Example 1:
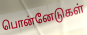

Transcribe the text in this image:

பொன்னேடுகள்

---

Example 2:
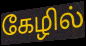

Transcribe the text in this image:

கேழில்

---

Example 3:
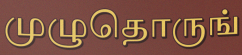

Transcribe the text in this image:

முழுதொருங்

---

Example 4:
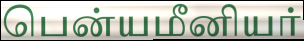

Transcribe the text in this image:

பென்யமீனியர்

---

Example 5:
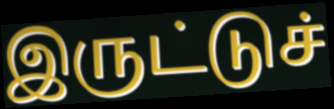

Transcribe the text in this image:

இருட்டுச்